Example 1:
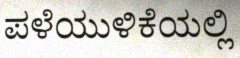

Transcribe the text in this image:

ಪಳೆಯುಳಿಕೆಯಲ್ಲಿ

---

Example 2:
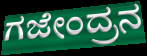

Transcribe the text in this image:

ಗಜೇಂದ್ರನ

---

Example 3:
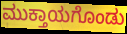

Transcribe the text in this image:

ಮುಕ್ತಾಯಗೊಂಡು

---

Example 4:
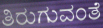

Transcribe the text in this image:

ತಿರುಗುವಂತೆ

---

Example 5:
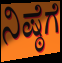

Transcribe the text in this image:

ನಿಷ್ಠೆಗೆ